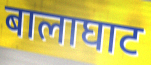
बालाघाट